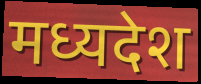
मध्यदेश